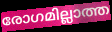
രോഗമില്ലാത്ത